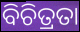
ବିଚିତ୍ରତା